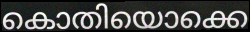
കൊതിയൊക്കെ